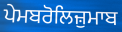
ਪੇਮਬਰੋਲਿਜ਼ੁਮਾਬ